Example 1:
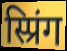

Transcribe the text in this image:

स्प्रिंग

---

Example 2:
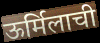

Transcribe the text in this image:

ऊर्मिलाची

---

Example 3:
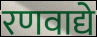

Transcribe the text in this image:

रणवाद्ये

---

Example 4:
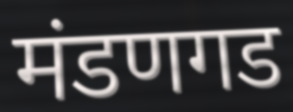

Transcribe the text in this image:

मंडणगड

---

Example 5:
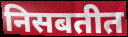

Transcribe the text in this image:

निसबतीत